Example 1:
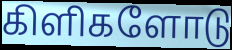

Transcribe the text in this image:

கிளிகளோடு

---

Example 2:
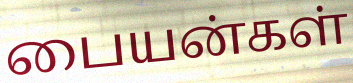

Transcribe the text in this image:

பையன்கள்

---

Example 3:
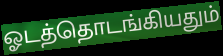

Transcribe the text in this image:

ஓடத்தொடங்கியதும்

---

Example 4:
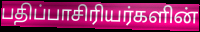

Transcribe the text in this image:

பதிப்பாசிரியர்களின்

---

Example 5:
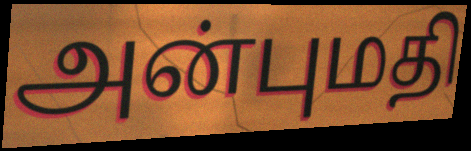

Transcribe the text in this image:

அன்புமதி